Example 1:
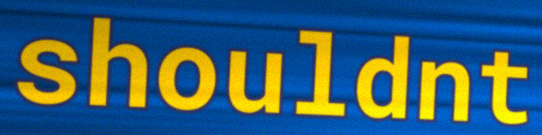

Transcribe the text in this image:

shouldnt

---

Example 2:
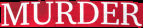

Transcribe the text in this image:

MURDER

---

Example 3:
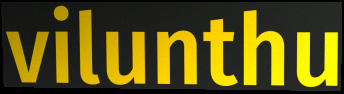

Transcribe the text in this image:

vilunthu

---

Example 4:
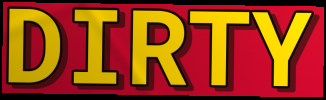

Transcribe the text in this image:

DIRTY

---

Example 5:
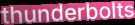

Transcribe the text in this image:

thunderbolts